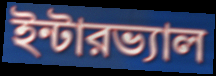
ইন্টারভ্যাল